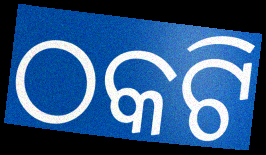
ଠକଟି